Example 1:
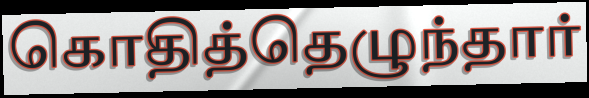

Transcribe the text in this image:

கொதித்தெழுந்தார்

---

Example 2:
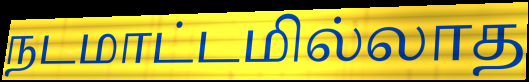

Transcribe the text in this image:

நடமாட்டமில்லாத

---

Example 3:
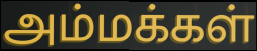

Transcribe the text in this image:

அம்மக்கள்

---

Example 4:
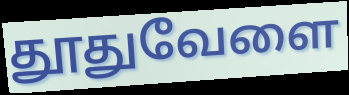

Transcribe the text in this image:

தூதுவேளை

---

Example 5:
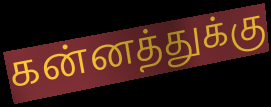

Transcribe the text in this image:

கன்னத்துக்கு